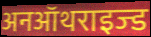
अनऑथराइज्ड